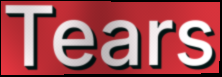
Tears